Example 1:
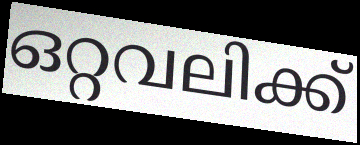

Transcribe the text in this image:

ഒറ്റവലിക്ക്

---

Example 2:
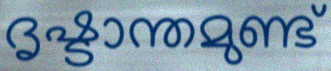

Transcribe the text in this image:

ദൃഷ്ടാന്തമുണ്ട്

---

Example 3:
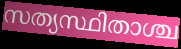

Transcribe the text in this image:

സത്യസ്ഥിതാശ്ച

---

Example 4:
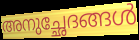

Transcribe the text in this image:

അനുച്ഛേദങ്ങൾ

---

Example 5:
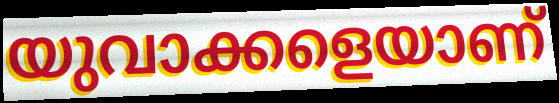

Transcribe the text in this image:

യുവാക്കളെയാണ്